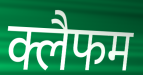
क्लैफम